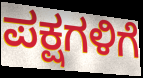
ಪಕ್ಷಗಳಿಗೆ